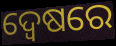
ଦ୍ୱେଷରେ